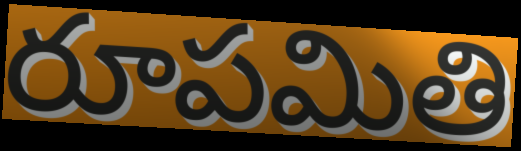
రూపమితి